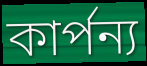
কার্পন্য